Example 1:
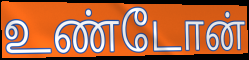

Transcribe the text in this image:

உண்டோன்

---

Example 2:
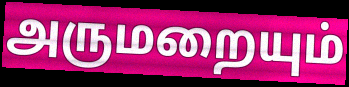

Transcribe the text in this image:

அருமறையும்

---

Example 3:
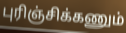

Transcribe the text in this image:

புரிஞ்சிக்கணும்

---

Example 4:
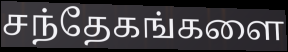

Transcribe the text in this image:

சந்தேகங்களை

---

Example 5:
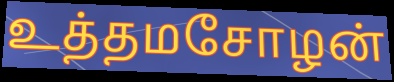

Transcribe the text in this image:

உத்தமசோழன்